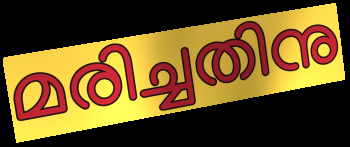
മരിച്ചതിനു